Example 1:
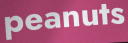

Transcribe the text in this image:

peanuts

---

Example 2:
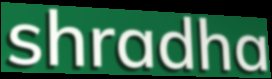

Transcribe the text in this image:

shradha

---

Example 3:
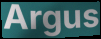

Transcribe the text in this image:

Argus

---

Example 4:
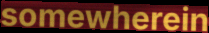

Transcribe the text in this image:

somewherein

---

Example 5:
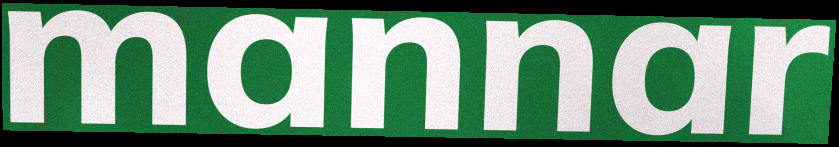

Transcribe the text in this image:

mannar